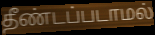
தீண்டப்படாமல்